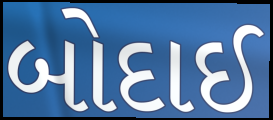
બોદાઈ